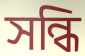
সন্ধি